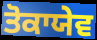
ਤੋਕਾਯੇਵ